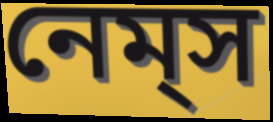
নেম্‌স